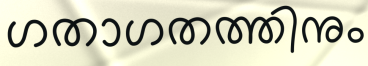
ഗതാഗതത്തിനും